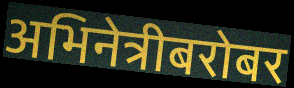
अभिनेत्रीबरोबर